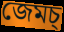
জেমচ্